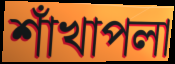
শাঁখাপলা